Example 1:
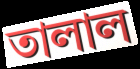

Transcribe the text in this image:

তালাল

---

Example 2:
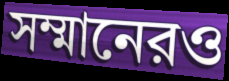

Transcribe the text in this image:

সম্মানেরও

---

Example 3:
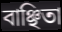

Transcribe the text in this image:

বাঞ্ছিতা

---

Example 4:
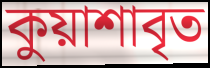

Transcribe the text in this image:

কুয়াশাবৃত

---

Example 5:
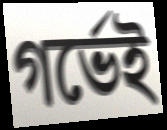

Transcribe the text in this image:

গর্ভেই